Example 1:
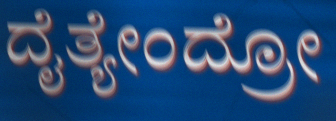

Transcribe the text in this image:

ದೈತ್ಯೇಂದ್ರೋ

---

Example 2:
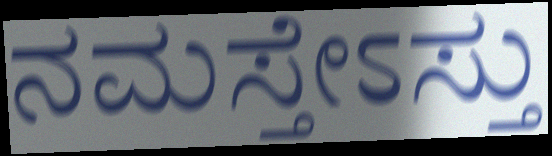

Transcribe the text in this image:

ನಮಸ್ತೇಽಸ್ತು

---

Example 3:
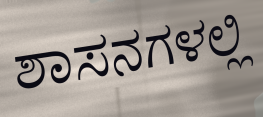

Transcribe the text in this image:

ಶಾಸನಗಳಲ್ಲಿ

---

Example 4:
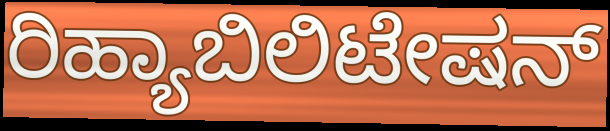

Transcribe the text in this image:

ರಿಹ್ಯಾಬಿಲಿಟೇಷನ್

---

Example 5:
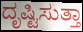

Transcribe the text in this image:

ದೃಷ್ಟಿಸುತ್ತಾ